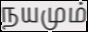
நயமும்